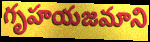
గృహయజమాని